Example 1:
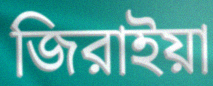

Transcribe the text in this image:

জিরাইয়া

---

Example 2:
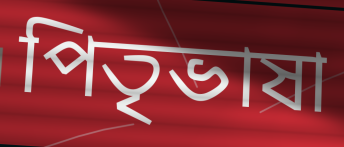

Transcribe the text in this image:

পিতৃভাষা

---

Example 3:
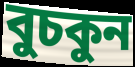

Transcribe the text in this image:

বুচকুন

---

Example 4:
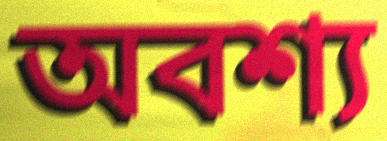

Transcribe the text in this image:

অবশ্য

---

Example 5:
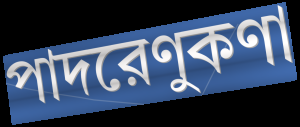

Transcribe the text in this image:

পাদরেণুকণা